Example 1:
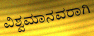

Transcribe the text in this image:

ವಿಶ್ವಮಾನವರಾಗಿ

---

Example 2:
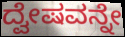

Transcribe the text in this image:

ದ್ವೇಷವನ್ನೇ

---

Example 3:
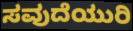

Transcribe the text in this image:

ಸವುದೆಯುರಿ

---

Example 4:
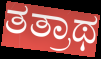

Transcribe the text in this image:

ತತ್ರಾಥ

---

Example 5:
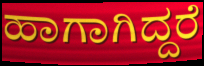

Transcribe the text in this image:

ಹಾಗಾಗಿದ್ದರೆ